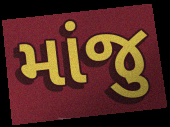
માંજુ